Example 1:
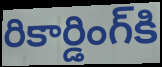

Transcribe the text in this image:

రికార్డింగ్‌కి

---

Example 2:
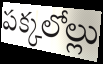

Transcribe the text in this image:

పక్కలోల్లు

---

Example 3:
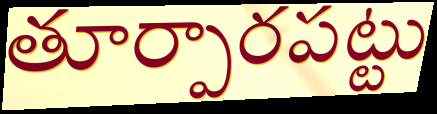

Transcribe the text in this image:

తూర్పారపట్టు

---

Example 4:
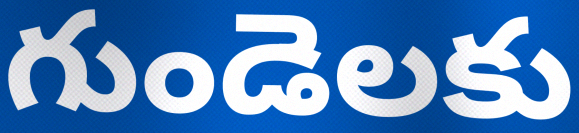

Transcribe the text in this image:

గుండెలకు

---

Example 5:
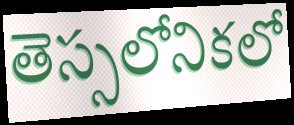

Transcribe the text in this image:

తెస్సలోనికలో